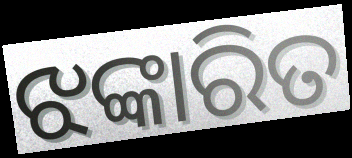
ଝଙ୍କାରିତ